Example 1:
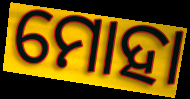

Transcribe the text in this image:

ମୋହା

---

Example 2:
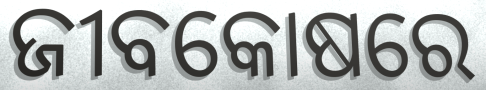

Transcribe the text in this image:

ଜୀବକୋଷରେ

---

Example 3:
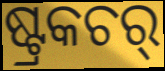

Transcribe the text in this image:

ଷ୍ଟ୍ରକଚର୍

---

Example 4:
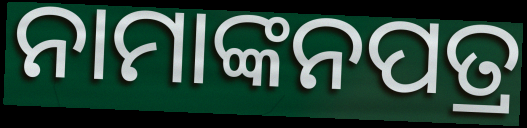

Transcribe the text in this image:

ନାମାଙ୍କନପତ୍ର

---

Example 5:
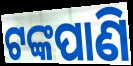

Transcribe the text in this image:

ଟଙ୍କପାଣି